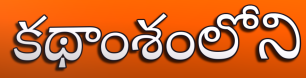
కథాంశంలోని